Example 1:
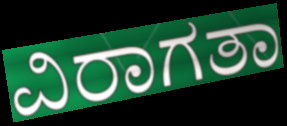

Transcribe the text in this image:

ವಿರಾಗತಾ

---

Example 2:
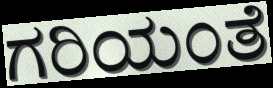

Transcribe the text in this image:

ಗರಿಯಂತೆ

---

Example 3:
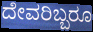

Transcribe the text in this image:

ದೇವರಿಬ್ಬರೂ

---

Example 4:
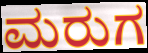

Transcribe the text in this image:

ಮರುಗ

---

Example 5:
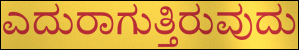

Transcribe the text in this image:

ಎದುರಾಗುತ್ತಿರುವುದು